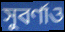
সুবর্ণাও